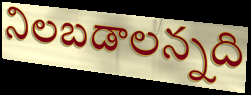
నిలబడాలన్నది